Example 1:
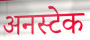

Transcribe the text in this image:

अनस्टेक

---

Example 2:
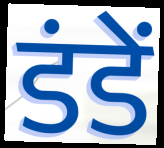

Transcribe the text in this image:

डंडें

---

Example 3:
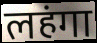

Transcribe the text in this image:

लहंगा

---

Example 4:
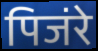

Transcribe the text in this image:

पिजंरे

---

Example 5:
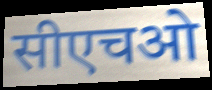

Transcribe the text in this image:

सीएचओ